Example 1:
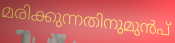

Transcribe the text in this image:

മരിക്കുന്നതിനുമുൻപ്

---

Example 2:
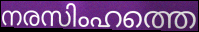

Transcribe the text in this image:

നരസിംഹത്തെ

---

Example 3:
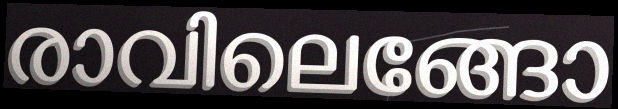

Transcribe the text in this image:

രാവിലെങ്ങോ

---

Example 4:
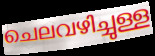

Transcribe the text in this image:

ചെലവഴിച്ചുള്ള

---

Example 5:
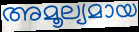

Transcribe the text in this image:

അമൂല്യമായ